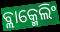
ବ୍ଲାକ୍ମେଲିଂ